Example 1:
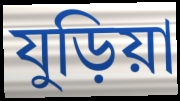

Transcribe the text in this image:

যুড়িয়া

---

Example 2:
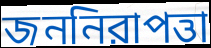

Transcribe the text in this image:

জননিরাপত্তা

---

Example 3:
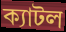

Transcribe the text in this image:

ক্যাটল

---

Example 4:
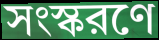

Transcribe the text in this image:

সংস্করণে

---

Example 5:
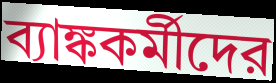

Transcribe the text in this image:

ব্যাঙ্ককর্মীদের